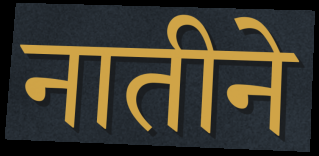
नातीने